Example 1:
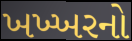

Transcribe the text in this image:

ખખ્ખરનો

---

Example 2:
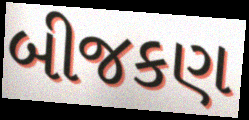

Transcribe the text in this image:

બીજકણ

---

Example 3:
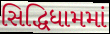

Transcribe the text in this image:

સિદ્ધિધામમાં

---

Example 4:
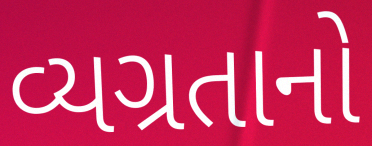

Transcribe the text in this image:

વ્યગ્રતાનો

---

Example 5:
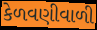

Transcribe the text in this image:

કેળવણીવાળી